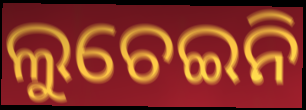
ଲୁଚେଇନି